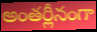
అంతర్లీనంగా